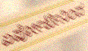
ಏರ್ಪೋರ್ಟಿನಿಂದ